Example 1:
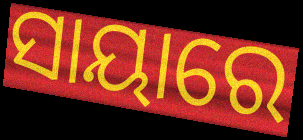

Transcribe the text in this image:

ସାୟାରେ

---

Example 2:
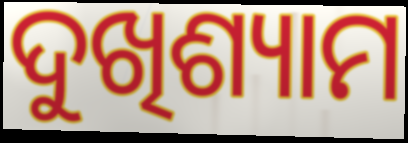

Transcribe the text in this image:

ଦୁଖିଶ୍ୟାମ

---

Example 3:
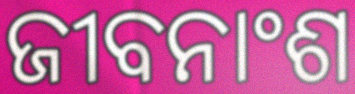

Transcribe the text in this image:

ଜୀବନାଂଶ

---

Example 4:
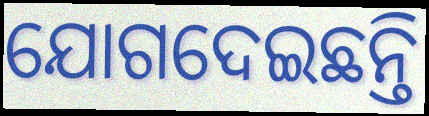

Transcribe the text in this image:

ଯୋଗଦେଇଛନ୍ତି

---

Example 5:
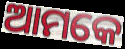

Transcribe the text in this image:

ଆମକେ